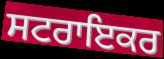
ਸਟਰਾਇਕਰ